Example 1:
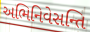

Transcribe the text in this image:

અભિનિવેસન્તિ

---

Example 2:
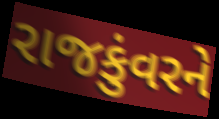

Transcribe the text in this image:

રાજકુંવરને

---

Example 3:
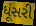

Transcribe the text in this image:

ધૂંસરી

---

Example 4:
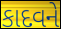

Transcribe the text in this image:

કાદવને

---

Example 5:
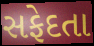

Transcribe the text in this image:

સફેદતા